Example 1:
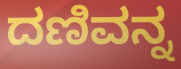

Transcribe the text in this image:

ದಣಿವನ್ನ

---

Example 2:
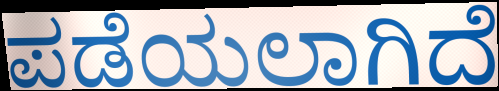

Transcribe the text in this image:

ಪಡೆಯಲಾಗಿದೆ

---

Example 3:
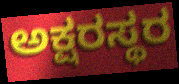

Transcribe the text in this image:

ಅಕ್ಷರಸ್ಥರ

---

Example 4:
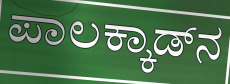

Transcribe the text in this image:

ಪಾಲಕ್ಕಾಡ್‌ನ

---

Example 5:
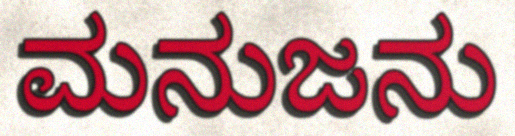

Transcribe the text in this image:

ಮನುಜನು